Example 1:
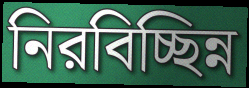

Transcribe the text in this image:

নিরবিচ্ছিন্ন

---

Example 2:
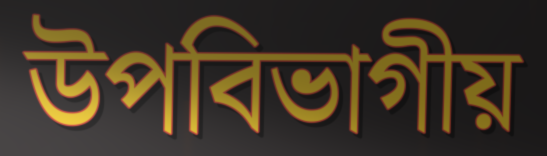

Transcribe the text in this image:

উপবিভাগীয়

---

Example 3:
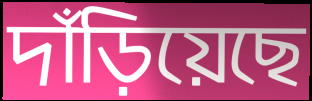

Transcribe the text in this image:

দাঁড়িয়েছে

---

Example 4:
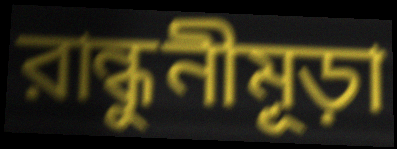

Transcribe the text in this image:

রান্ধুনীমূড়া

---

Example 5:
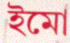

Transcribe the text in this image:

ইমো